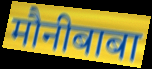
मौनीबाबा